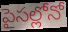
పైసల్లోనో